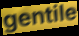
gentile